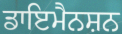
ਡਾਇਮੈਨਸ਼ਨ